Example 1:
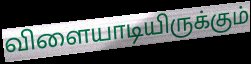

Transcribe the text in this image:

விளையாடியிருக்கும்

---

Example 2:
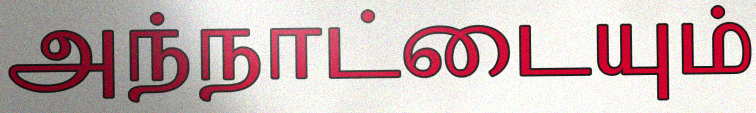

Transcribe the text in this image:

அந்நாட்டையும்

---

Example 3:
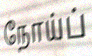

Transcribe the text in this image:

நோய்ப்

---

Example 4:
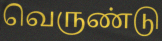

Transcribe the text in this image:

வெருண்டு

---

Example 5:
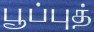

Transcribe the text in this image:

பூப்புத்